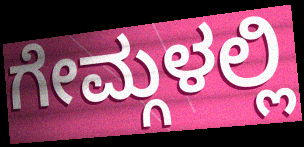
ಗೇಮ್ಗಳಲ್ಲಿ